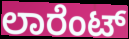
ಲಾರೆಂಟ್